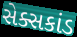
સેક્સકાંડ